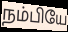
நம்பியே